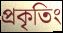
প্রকৃতিং